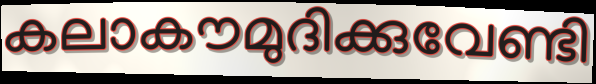
കലാകൗമുദിക്കുവേണ്ടി